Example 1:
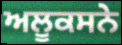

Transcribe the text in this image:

ਅਲੂਕਸਨੇ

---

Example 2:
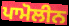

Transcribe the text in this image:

ਪਾਮੋਲੀਨ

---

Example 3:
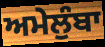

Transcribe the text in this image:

ਅਮੇਲੁੰਬਾ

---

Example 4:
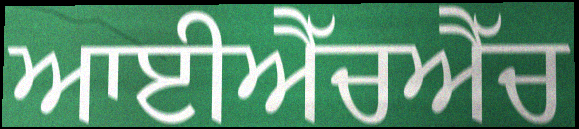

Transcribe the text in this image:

ਆਈਐੱਚਐੱਚ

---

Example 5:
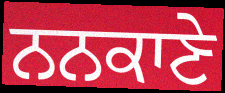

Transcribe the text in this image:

ਨਨਕਾਣੇ